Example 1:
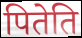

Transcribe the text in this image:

पितेति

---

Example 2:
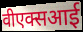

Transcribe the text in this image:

वीएक्सआई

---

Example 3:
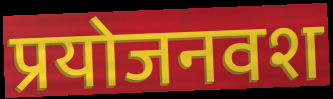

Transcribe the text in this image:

प्रयोजनवश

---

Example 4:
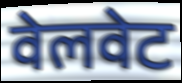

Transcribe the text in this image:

वेलवेट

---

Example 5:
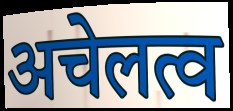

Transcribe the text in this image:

अचेलत्व